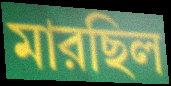
মারছিল